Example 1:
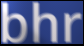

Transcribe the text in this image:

bhr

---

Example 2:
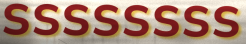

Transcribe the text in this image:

ssssssss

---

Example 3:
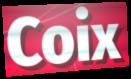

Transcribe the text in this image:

Coix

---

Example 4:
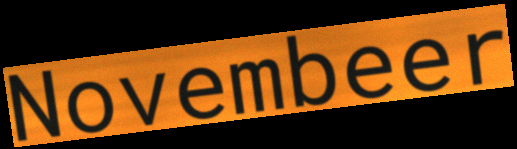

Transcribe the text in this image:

Novembeer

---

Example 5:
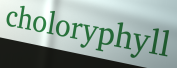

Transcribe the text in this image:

choloryphyll